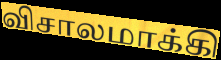
விசாலமாக்கி